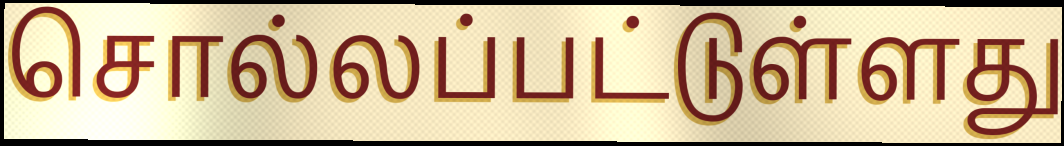
சொல்லப்பட்டுள்ளது